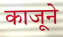
काजूने